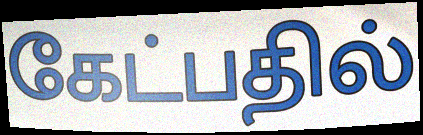
கேட்பதில்